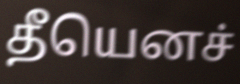
தீயெனச்